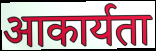
आकार्यता